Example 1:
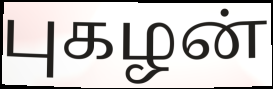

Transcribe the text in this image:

புகழன்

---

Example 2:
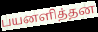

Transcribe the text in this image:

பயனளித்தன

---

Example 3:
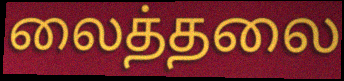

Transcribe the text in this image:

லைத்தலை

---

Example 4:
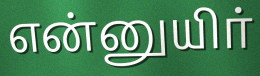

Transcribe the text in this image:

என்னுயிர்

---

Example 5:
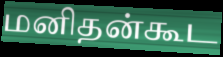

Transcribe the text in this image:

மனிதன்கூட